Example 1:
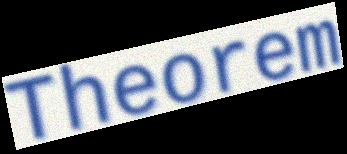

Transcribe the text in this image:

Theorem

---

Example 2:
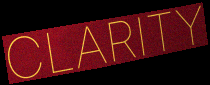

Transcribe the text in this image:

CLARITY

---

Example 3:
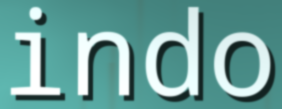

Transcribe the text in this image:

indo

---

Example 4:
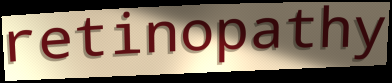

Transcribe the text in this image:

retinopathy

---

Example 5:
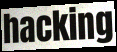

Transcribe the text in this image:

hacking